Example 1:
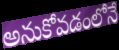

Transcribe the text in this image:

అనుకోవడంలోనే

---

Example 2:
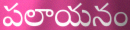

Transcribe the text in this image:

పలాయనం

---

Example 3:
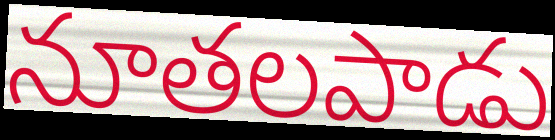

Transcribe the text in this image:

నూతలపాడు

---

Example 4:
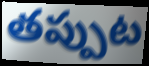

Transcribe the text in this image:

తప్పుట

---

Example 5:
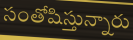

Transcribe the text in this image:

సంతోషిస్తున్నారు